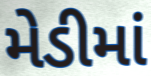
મેડીમાં